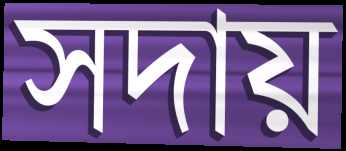
সদায়